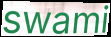
swami